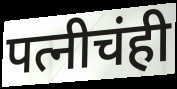
पत्नीचंही